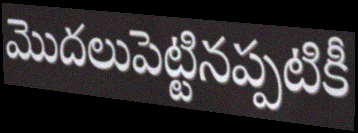
మొదలుపెట్టినప్పటికీ